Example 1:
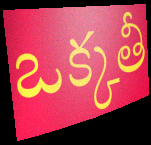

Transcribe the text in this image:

ఒక్కతీ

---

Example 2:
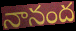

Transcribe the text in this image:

నానంద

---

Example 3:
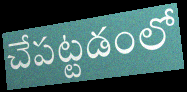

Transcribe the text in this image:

చేపట్టడంలో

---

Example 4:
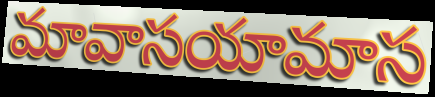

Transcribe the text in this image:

మావాసయామాస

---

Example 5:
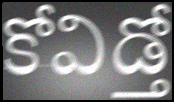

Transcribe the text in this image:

కోవిడ్తో